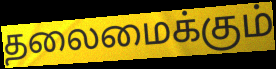
தலைமைக்கும்